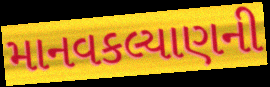
માનવકલ્યાણની